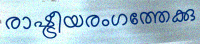
രാഷ്ട്രീയരംഗത്തേക്കു